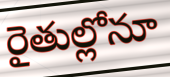
రైతుల్లోనూ